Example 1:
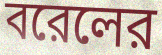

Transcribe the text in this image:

বরেলের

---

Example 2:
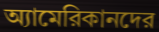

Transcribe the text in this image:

অ্যামেরিকানদের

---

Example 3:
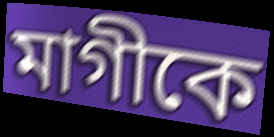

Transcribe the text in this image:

মাগীকে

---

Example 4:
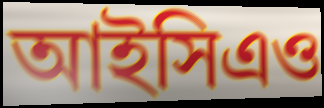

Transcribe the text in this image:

আইসিএও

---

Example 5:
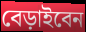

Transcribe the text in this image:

বেড়াইবেন